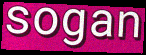
sogan